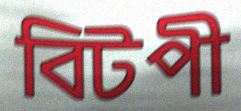
বিটপী